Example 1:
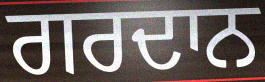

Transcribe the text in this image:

ਗਰਦਾਨ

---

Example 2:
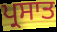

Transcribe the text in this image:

ਪ੍ਰਸਾਤ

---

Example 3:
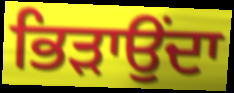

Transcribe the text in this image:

ਭਿੜਾਉਂਦਾ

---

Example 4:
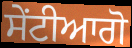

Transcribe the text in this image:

ਸੇਂਟੀਆਗੋ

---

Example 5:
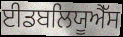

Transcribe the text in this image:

ਈਡਬਲਿਯੂਐੱਸ